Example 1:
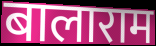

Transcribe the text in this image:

बालाराम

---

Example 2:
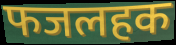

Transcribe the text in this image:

फजलहक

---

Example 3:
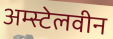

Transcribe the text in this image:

अम्स्टेलवीन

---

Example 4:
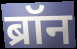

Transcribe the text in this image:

ब्रॉन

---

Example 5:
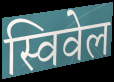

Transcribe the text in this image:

स्विवेल